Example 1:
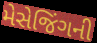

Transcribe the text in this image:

મેસેજિંગની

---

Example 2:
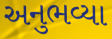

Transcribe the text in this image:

અનુભવ્યા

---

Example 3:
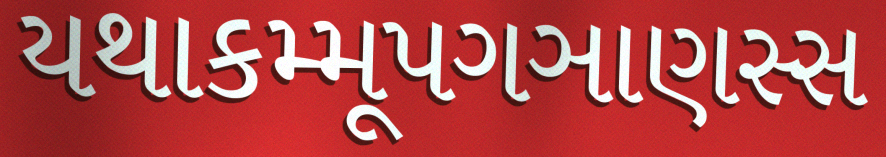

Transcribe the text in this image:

યથાકમ્મૂપગઞાણસ્સ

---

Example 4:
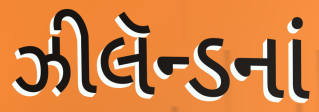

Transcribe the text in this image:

ઝીલૅન્ડનાં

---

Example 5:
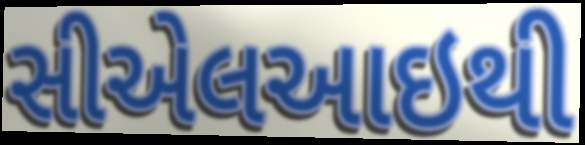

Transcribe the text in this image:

સીએલઆઇથી